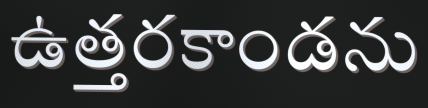
ఉత్తరకాండను